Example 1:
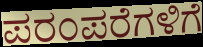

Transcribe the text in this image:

ಪರಂಪರೆಗಳಿಗೆ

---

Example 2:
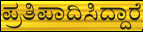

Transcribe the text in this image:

ಪ್ರತಿಪಾದಿಸಿದ್ದಾರೆ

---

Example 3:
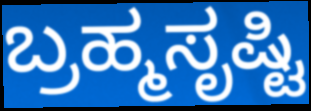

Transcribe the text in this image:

ಬ್ರಹ್ಮಸೃಷ್ಟಿ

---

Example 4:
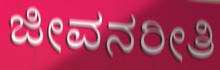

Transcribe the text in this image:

ಜೀವನರೀತಿ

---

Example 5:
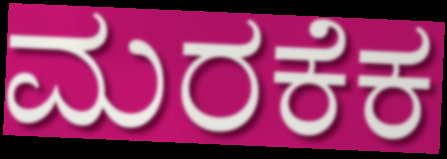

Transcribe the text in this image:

ಮರಕೆಕ